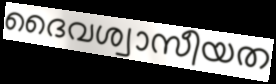
ദൈവശ്വാസീയത